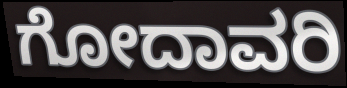
ಗೋದಾವರಿ